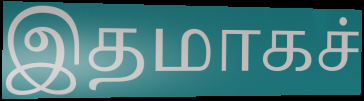
இதமாகச்